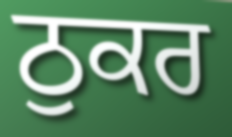
ਠੁਕਰ